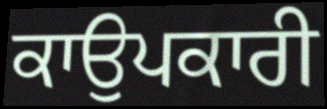
ਕਾਉਪਕਾਰੀ